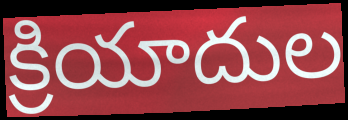
క్రియాదుల